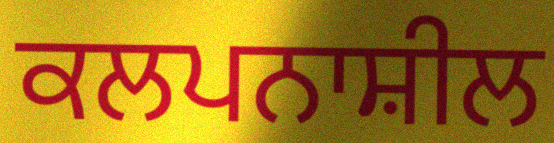
ਕਲਪਨਾਸ਼ੀਲ